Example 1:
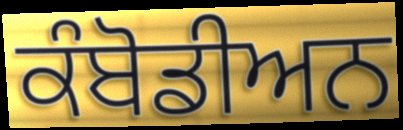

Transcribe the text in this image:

ਕੰਬੋਡੀਅਨ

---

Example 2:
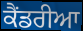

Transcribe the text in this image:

ਕੈਂਡਰੀਆ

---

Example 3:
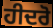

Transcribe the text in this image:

ਹੀਦਰੋ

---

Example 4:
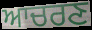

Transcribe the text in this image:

ਆਚਰਣ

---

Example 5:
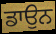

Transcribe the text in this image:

ਡਾਉਨ